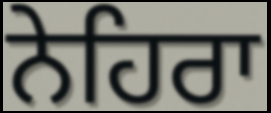
ਨੇਹਿਰਾ